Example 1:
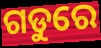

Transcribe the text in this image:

ଗଡୁରେ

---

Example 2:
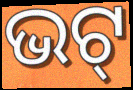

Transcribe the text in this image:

ଭଟ୍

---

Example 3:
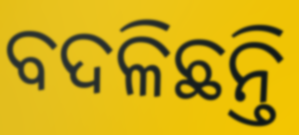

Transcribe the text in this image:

ବଦଳିଛନ୍ତି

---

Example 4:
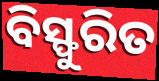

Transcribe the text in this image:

ବିସ୍ଫୁରିତ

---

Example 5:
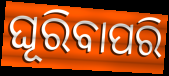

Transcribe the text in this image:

ଘୂରିବାପରି